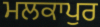
ਮਲਕਾਪੁਰ